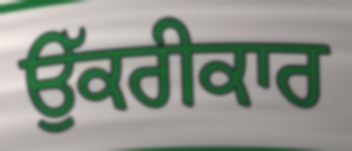
ਉੱਕਰੀਕਾਰ